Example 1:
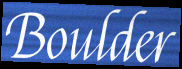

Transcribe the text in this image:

Boulder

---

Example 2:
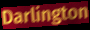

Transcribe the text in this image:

Darlington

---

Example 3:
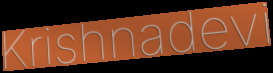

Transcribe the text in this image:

Krishnadevi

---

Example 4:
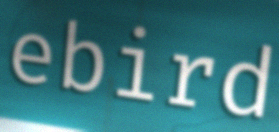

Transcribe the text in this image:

ebird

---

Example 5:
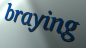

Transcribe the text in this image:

braying